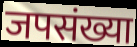
जपसंख्या